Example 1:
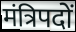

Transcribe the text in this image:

मंत्रिपदों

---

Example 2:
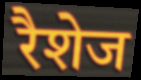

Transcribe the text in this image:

रैशेज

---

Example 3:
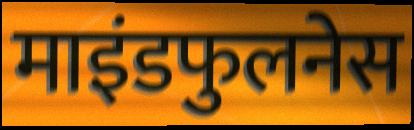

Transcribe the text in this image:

माइंडफुलनेस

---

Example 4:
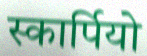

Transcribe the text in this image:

स्कार्पियो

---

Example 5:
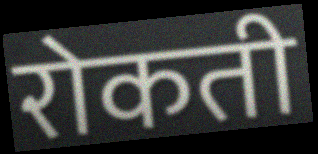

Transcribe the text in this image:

रोकती